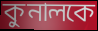
কুনালকে